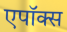
एपॉक्स